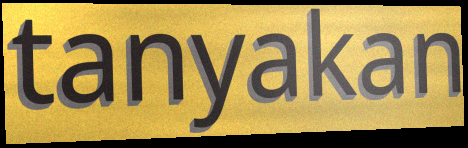
tanyakan